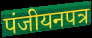
पंजीयनपत्र